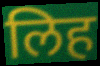
लिह